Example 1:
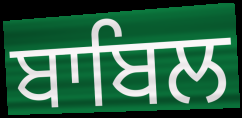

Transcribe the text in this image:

ਬਾਬਿਲ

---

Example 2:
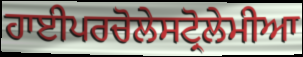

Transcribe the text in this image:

ਹਾਈਪਰਚੋਲੇਸਟ੍ਰੋਲੇਮੀਆ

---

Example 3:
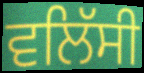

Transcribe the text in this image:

ਵਲਿੱਸੀ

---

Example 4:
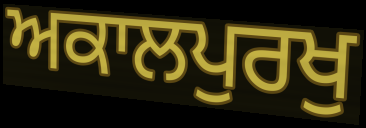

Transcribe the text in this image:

ਅਕਾਲਪੁਰਖੁ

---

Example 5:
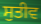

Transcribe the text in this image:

ਸੁਤੀਵ